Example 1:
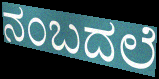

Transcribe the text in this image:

ನಂಬದಲೆ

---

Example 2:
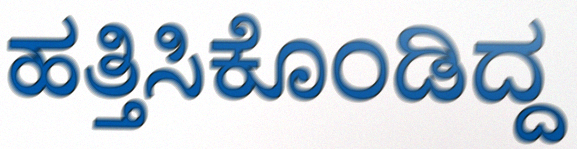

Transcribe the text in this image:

ಹತ್ತಿಸಿಕೊಂಡಿದ್ದ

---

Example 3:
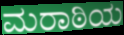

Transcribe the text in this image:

ಮರಾಠಿಯ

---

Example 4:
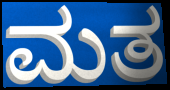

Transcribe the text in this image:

ಮತ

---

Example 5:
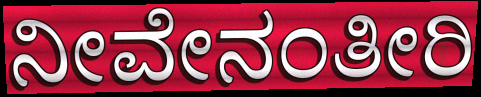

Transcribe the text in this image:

ನೀವೇನಂತೀರಿ